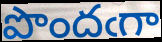
పొందఁగా